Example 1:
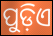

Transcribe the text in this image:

ପୁଡ଼ିଏ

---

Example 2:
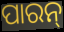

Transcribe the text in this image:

ପାରନ୍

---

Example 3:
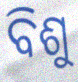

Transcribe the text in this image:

ବିଶୁ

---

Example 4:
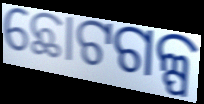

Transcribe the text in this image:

ଛୋଟଗଳ୍ପ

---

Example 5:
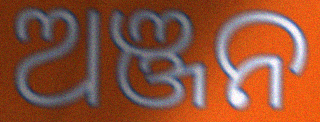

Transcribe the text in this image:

ଅଞ୍ଜନ